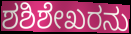
ಶಶಿಶೇಖರನು